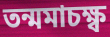
তন্মমাচক্ষ্ব